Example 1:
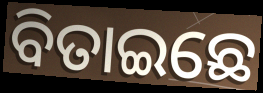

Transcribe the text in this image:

ବିତାଇଛେ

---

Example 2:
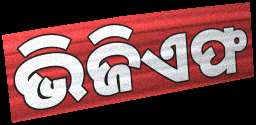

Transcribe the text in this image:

ଭିଜିଏଫ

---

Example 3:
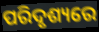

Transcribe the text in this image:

ପରିଦୃଶ୍ୟରେ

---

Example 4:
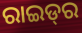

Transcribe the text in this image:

ରାଇଡ୍‌ର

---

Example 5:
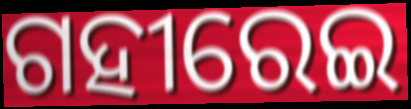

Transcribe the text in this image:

ଗହୀରେଇ